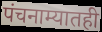
पंचनाम्यातही